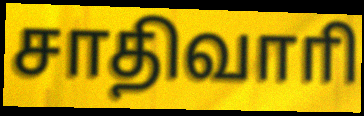
சாதிவாரி